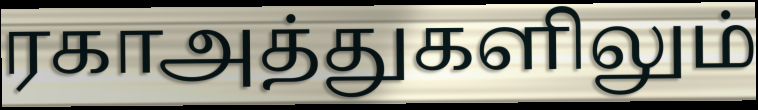
ரகாஅத்துகளிலும்